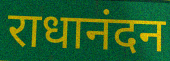
राधानंदन